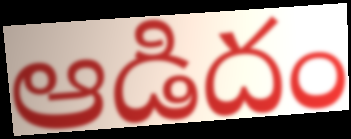
ఆడిదం